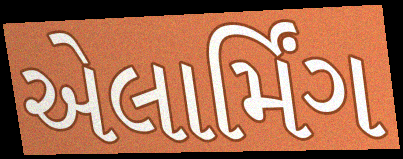
એલાર્મિંગ